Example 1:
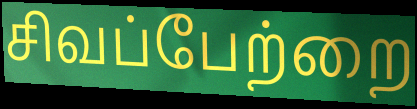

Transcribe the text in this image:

சிவப்பேற்றை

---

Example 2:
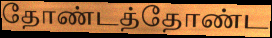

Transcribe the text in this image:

தோண்டத்தோண்ட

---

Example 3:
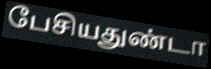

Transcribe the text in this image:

பேசியதுண்டா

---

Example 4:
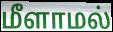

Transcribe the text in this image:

மீளாமல்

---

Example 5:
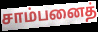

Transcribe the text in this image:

சாம்பனைத்